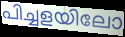
പിച്ചളയിലോ